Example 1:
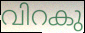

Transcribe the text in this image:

വിറകു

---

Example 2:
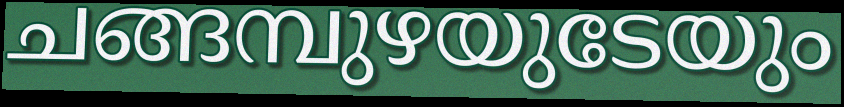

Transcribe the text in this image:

ചങ്ങമ്പുഴയുടേയും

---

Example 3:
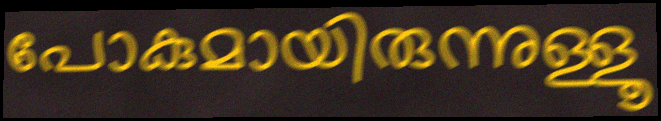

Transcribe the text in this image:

പോകുമായിരുന്നുള്ളൂ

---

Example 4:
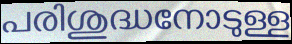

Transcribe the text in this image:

പരിശുദ്ധനോടുള്ള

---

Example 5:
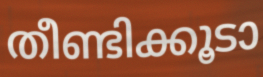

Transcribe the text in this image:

തീണ്ടിക്കൂടാ